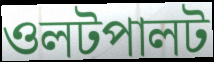
ওলটপালট